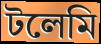
টলেমি